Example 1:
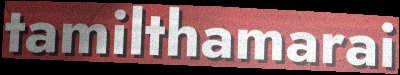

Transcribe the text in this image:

tamilthamarai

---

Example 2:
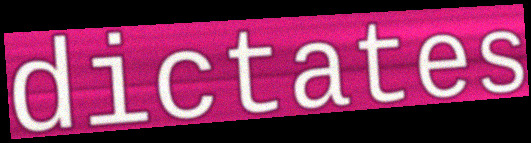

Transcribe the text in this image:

dictates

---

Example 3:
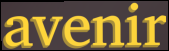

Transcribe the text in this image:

avenir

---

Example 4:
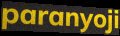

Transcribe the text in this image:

paranyoji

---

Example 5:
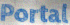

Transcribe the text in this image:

Portal